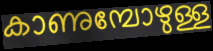
കാണുമ്പോഴുള്ള